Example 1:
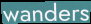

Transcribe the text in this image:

wanders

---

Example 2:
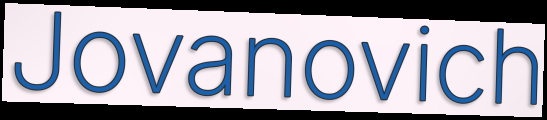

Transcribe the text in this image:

Jovanovich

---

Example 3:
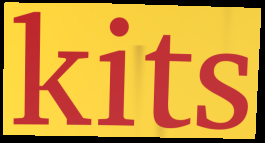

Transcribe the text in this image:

kits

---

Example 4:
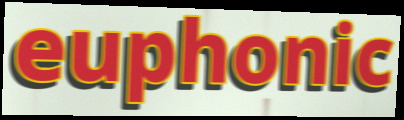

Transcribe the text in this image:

euphonic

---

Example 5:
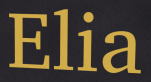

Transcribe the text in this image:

Elia